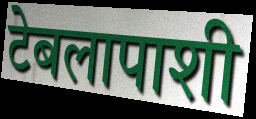
टेबलापाशी